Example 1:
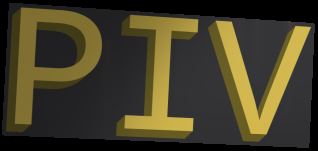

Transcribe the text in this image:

PIV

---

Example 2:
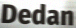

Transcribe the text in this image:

Dedan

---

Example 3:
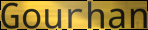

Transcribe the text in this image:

Gourhan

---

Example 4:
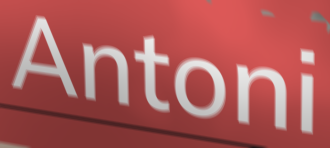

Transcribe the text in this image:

Antoni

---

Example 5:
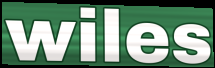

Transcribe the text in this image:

wiles